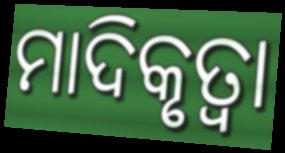
ମାଦିକୃତ୍ୱା